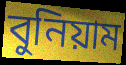
বুনিয়াম